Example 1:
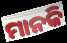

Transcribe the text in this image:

ମାନକି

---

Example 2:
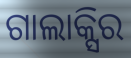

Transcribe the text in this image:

ଗାଲାକ୍ସିର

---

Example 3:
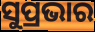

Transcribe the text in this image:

ସୁପ୍ରଭାର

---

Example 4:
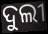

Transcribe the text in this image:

ଦୁଲୀ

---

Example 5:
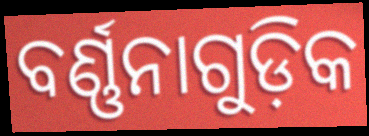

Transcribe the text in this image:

ବର୍ଣ୍ଣନାଗୁଡ଼ିକ